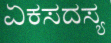
ಏಕಸದಸ್ಯ